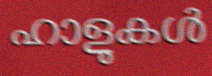
ഹാളുകൾ